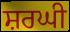
ਸ਼ਰਘੀ